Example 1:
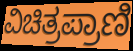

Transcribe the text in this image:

ವಿಚಿತ್ರಪ್ರಾಣಿ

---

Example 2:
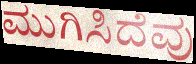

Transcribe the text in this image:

ಮುಗಿಸಿದೆವು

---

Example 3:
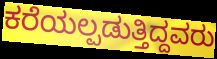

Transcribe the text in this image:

ಕರೆಯಲ್ಪಡುತ್ತಿದ್ದವರು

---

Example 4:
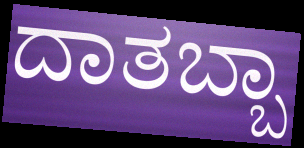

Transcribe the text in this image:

ದಾತಬ್ಬಾ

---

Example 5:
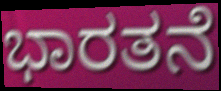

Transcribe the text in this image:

ಭಾರತನೆ